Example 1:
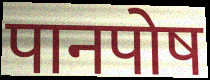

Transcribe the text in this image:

पानपोष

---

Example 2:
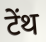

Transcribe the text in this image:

टेंथ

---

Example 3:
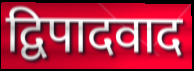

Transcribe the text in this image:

द्विपादवाद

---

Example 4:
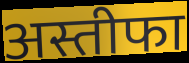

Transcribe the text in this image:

अस्तीफा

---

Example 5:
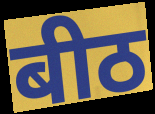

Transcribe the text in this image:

बीठ